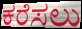
ಕರೆಸಲು